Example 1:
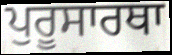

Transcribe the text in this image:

ਪੁਰੂਸਾਰਥਾ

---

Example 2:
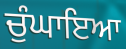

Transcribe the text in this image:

ਚੁੰਘਾਇਆ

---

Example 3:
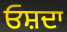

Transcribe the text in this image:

ਓਸ਼ਦਾ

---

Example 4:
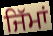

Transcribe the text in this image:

ਜਿੱਮਾਂ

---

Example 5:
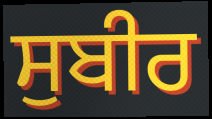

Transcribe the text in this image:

ਸੁਬੀਰ